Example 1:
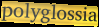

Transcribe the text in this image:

polyglossia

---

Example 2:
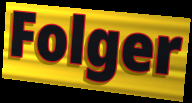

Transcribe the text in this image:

Folger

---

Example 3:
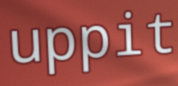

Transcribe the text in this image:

uppit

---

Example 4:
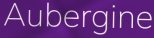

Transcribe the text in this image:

Aubergine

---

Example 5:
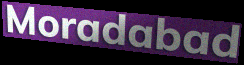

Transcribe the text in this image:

Moradabad